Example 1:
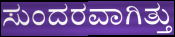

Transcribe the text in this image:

ಸುಂದರವಾಗಿತ್ತು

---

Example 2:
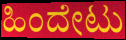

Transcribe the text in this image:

ಹಿಂದೇಟು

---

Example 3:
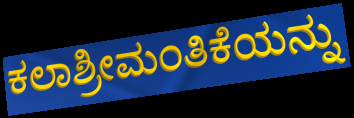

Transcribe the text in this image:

ಕಲಾಶ್ರೀಮಂತಿಕೆಯನ್ನು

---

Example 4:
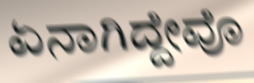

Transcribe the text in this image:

ಏನಾಗಿದ್ದೇವೊ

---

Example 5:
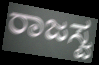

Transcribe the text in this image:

ರಾಜಸ್ವ